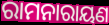
ରାମନାରାୟଣ